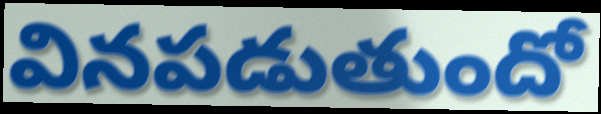
వినపడుతుందో